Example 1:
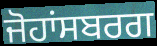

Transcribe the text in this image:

ਜੋਹਾਂਸਬਰਗ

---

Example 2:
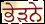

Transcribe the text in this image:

ਭੇੜਨੇ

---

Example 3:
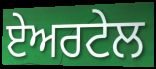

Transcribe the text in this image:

ਏਅਰਟੇਲ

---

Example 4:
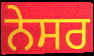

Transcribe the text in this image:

ਨੇਸਰ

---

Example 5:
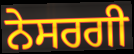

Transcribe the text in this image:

ਨੇਸਰਗੀ